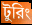
টুরিং